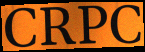
CRPC